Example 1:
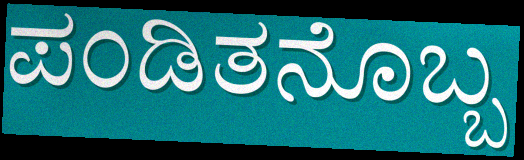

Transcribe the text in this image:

ಪಂಡಿತನೊಬ್ಬ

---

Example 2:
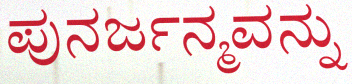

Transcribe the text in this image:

ಪುನರ್ಜನ್ಮವನ್ನು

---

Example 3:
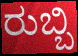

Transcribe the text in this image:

ರುಬ್ಬಿ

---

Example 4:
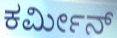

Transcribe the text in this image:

ಕರ್ಮೀನ್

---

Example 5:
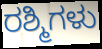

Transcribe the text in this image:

ರಶ್ಮಿಗಳು